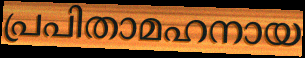
പ്രപിതാമഹനായ